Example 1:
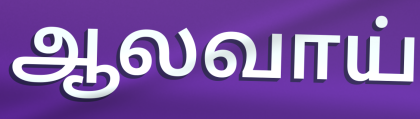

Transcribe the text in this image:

ஆலவாய்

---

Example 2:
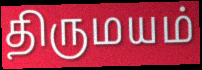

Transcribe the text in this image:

திருமயம்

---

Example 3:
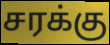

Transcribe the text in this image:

சரக்கு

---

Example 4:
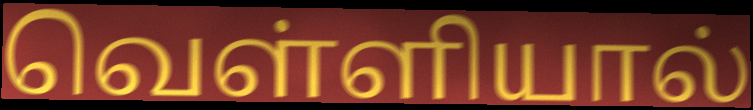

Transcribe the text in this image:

வெள்ளியால்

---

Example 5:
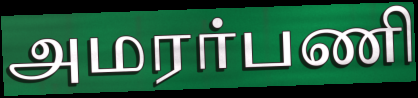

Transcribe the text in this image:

அமரர்பணி